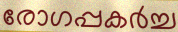
രോഗപ്പകർച്ച